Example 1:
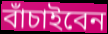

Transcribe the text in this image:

বাঁচাইবেন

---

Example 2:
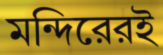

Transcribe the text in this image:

মন্দিরেরই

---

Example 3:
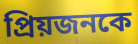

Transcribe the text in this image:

প্রিয়জনকে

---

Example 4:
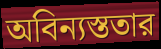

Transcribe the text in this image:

অবিন্যস্ততার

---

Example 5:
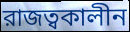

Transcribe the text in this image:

রাজত্বকালীন